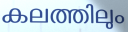
കലത്തിലും